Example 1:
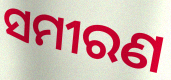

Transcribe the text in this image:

ସମୀରଣ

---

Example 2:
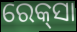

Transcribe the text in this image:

ରେକ୍‍ସା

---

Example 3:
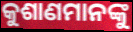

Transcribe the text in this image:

କୁଶାଣମାନଙ୍କୁ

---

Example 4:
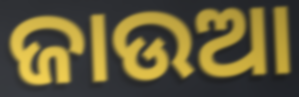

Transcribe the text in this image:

ଜାଉଆ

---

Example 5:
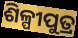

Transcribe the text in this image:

ଶିଳ୍ପୀପୁତ୍ର